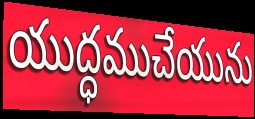
యుద్ధముచేయును